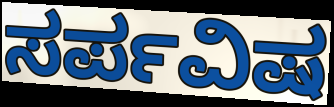
ಸರ್ಪವಿಷ